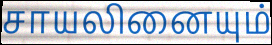
சாயலினையும்